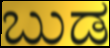
ಬುಡ